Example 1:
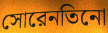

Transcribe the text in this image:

সোরেনতিনো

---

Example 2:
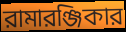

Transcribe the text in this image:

রামারঞ্জিকার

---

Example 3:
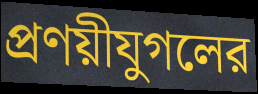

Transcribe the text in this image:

প্রণয়ীযুগলের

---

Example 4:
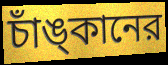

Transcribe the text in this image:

চাঁঙ্‌কানের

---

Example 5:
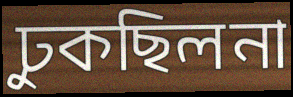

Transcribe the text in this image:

ঢুকছিলনা